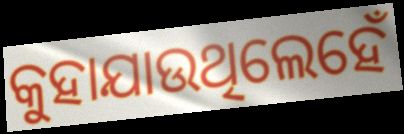
କୁହାଯାଉଥିଲେହେଁ